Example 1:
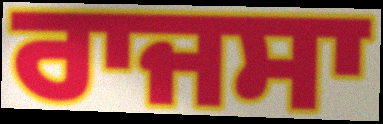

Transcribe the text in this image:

ਰਾਜਸਾ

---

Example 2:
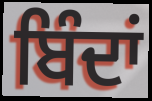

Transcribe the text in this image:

ਬਿੰਦਾਂ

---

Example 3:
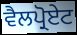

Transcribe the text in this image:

ਵੈਲਪ੍ਰੋਏਟ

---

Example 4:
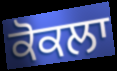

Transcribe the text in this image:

ਕੋਕਲਾ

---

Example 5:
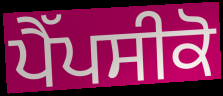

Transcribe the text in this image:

ਪੈੱਪਸੀਕੋ